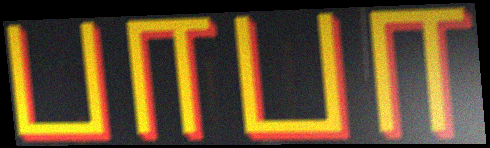
பாபா